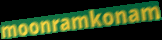
moonramkonam